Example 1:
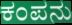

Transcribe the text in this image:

ಕಂಪನು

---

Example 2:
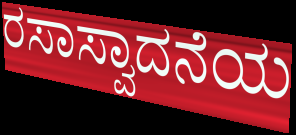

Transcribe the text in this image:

ರಸಾಸ್ವಾದನೆಯ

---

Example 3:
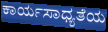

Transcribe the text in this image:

ಕಾರ್ಯಸಾಧ್ಯತೆಯ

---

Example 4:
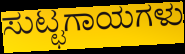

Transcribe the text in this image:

ಸುಟ್ಟಗಾಯಗಳು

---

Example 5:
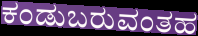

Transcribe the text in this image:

ಕಂಡುಬರುವಂತಹ